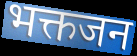
भक्तजन